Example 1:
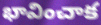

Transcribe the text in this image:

భావించాక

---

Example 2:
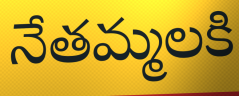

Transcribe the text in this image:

నేతమ్మలకి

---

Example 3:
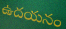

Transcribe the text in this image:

ఉదయనం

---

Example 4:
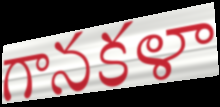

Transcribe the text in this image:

గానకళా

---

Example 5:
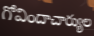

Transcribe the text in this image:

గోవిందాచార్యుల